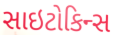
સાઇટોકિન્સ